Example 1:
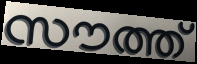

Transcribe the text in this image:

സൗത്ത്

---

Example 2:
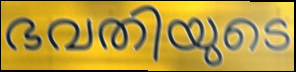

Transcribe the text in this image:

ഭവതിയുടെ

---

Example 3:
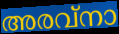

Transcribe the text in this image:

അരവ്നാ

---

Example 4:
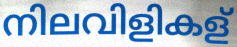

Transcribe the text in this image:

നിലവിളികള്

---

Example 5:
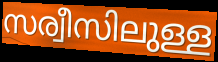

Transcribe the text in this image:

സര്വീസിലുള്ള